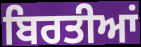
ਬਿਰਤੀਆਂ